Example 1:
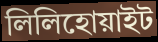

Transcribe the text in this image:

লিলিহোয়াইট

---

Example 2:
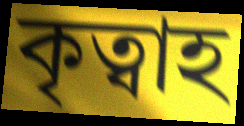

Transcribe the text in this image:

কৃত্বাহ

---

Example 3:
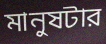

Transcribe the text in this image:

মানুষটার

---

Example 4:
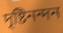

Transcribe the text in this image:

দৃষ্টিনন্দন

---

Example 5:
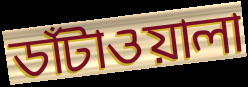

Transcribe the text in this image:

ডাঁটাওয়ালা